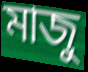
মাজু